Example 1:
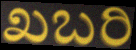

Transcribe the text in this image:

ಖಬರಿ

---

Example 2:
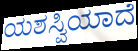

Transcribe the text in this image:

ಯಶಸ್ವಿಯಾದೆ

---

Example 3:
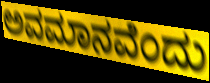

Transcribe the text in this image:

ಅವಮಾನವೆಂದು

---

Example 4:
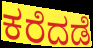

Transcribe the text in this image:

ಕರೆದಡೆ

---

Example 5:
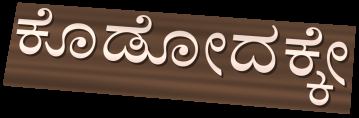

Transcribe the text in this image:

ಕೊಡೋದಕ್ಕೇ